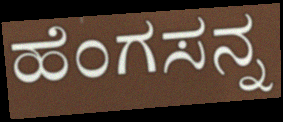
ಹೆಂಗಸನ್ನ